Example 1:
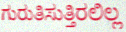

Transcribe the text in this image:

ಗುರುತಿಸುತ್ತಿರಲಿಲ್ಲ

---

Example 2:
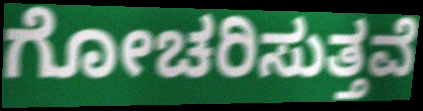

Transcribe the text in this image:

ಗೋಚರಿಸುತ್ತವೆ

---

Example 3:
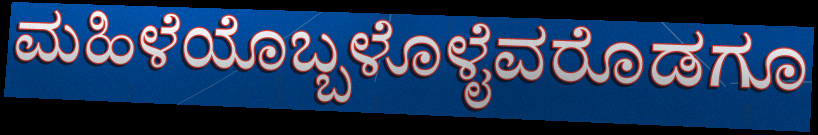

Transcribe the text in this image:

ಮಹಿಳೆಯೊಬ್ಬಳೊಳೈವರೊಡಗೂ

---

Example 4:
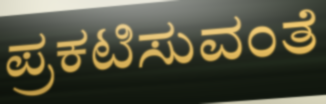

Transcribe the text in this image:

ಪ್ರಕಟಿಸುವಂತೆ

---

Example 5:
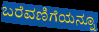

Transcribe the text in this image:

ಬರೆವಣಿಗೆಯನ್ನೂ